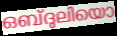
ഒബ്ദുലിയൊ